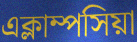
এক্লাম্পসিয়া